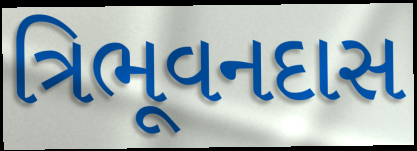
ત્રિભૂવનદાસ